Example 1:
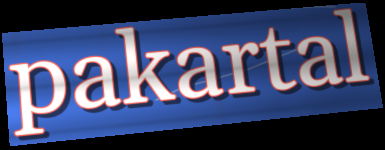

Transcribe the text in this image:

pakartal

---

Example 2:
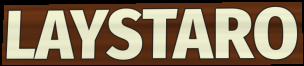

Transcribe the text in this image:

LAYSTARO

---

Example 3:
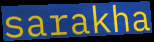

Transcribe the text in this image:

sarakha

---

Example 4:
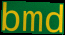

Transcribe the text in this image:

bmd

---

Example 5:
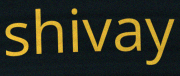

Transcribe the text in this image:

shivay